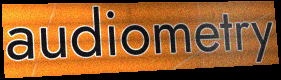
audiometry